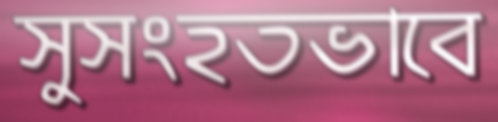
সুসংহতভাবে